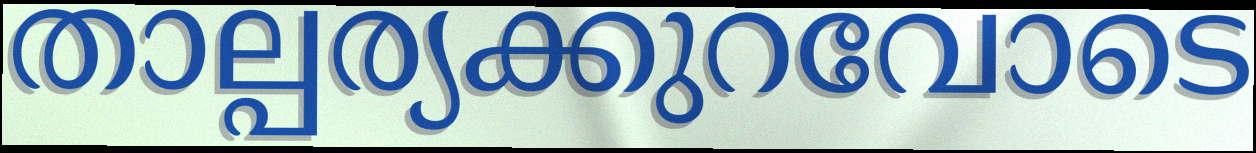
താല്പര്യക്കുറവോടെ